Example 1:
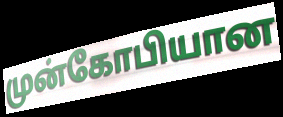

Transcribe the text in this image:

முன்கோபியான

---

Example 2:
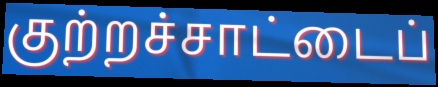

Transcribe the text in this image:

குற்றச்சாட்டைப்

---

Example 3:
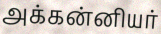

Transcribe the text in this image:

அக்கன்னியர்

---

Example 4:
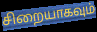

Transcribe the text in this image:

சிறையாகவும்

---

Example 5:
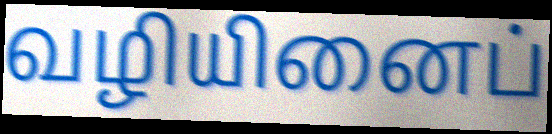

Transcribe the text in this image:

வழியினைப்